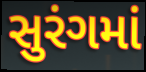
સુરંગમાં